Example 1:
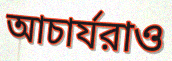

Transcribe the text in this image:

আচার্যরাও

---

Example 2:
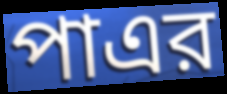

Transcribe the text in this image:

পাএর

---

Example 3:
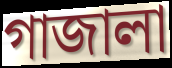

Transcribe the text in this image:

গাজালা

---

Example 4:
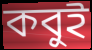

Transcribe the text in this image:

কবুই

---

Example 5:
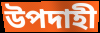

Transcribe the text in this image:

উপদাহী